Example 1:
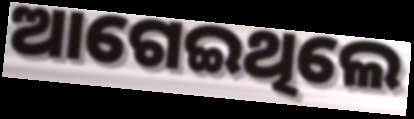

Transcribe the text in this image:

ଆଗେଇଥିଲେ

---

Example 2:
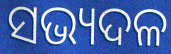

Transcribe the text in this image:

ସଭ୍ୟଦଳ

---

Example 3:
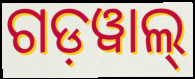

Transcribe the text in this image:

ଗଡ଼ୱାଲ୍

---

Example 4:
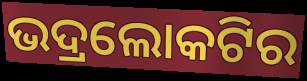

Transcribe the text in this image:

ଭଦ୍ରଲୋକଟିର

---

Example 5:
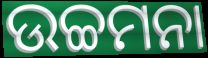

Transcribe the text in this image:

ଉଚ୍ଚମନା